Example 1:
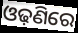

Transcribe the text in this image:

ଓଢ଼ଣିରେ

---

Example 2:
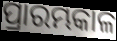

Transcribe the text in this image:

ପ୍ରାରମ୍ଭକାଳ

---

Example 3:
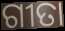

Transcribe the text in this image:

ଗୀତା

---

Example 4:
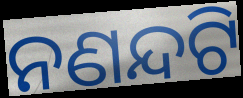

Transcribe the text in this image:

ନଣନ୍ଦଟି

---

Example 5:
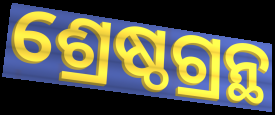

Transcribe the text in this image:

ଶ୍ରେଷ୍ଠଗ୍ରନ୍ଥ